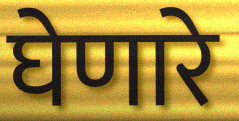
घेणारे